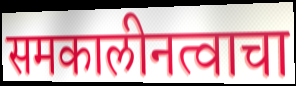
समकालीनत्वाचा